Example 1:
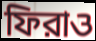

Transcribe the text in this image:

ফিরাও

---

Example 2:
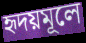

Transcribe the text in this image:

হৃদয়মূলে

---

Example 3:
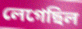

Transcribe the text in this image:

লেগেছিল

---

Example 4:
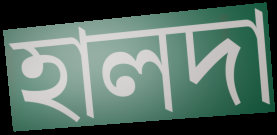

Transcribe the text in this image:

হালদা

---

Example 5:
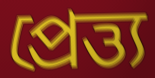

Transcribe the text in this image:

প্রেত্ত্য